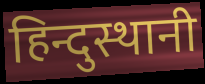
हिन्दुस्थानी